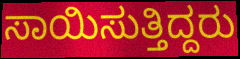
ಸಾಯಿಸುತ್ತಿದ್ದರು